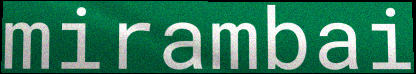
mirambai